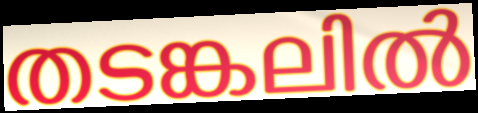
തടങ്കലിൽ